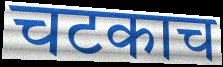
चटकाच